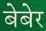
बेबेर